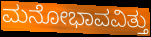
ಮನೋಭಾವವಿತ್ತು